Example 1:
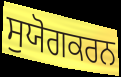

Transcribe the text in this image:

ਸੁਯੋਗਕਰਨ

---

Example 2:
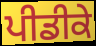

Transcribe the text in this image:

ਪੀਡੀਕੇ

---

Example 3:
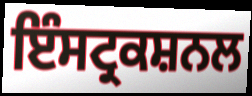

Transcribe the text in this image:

ਇੰਸਟ੍ਰਕਸ਼ਨਲ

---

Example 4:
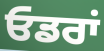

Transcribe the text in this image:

ਓਡਰਾਂ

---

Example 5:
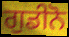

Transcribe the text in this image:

ਗੁਡੀਨੋ